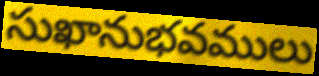
సుఖానుభవములు